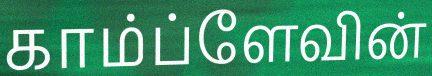
காம்ப்ளேவின்